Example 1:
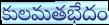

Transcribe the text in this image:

కులమతభేదం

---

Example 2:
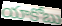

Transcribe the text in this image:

యాకోబు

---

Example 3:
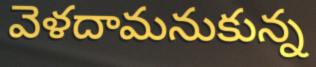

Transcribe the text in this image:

వెళదామనుకున్న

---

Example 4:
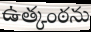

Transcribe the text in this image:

ఉత్కంఠను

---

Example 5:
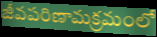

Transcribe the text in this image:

జీవపరిణామక్రమంలో